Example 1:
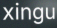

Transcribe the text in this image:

xingu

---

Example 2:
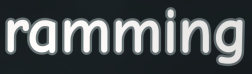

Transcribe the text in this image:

ramming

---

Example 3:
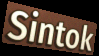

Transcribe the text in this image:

Sintok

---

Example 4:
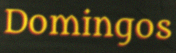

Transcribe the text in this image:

Domingos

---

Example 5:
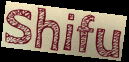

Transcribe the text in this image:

Shifu